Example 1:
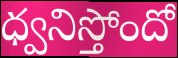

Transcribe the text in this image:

ధ్వనిస్తోందో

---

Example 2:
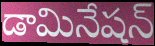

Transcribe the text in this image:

డామినేషన్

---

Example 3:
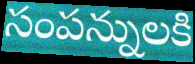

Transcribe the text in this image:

సంపన్నులకి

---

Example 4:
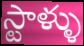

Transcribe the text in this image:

స్టాళ్ళు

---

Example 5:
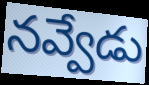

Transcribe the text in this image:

నవ్వేడు